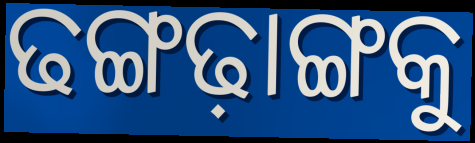
ଢଙ୍ଗଢ଼ାଙ୍ଗକୁ